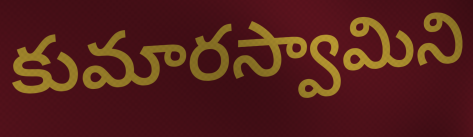
కుమారస్వామిని